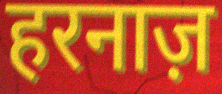
हरनाज़